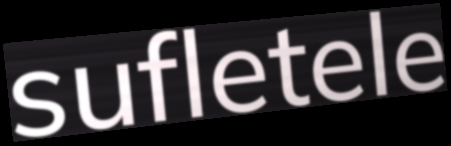
sufletele